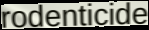
rodenticide